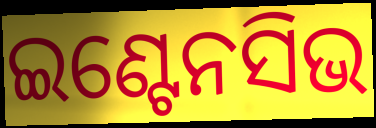
ଇଣ୍ଟେନସିଭ